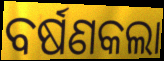
ବର୍ଷଣକଲା